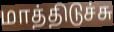
மாத்திடுச்சு